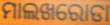
ମାଲଖରୋଡା